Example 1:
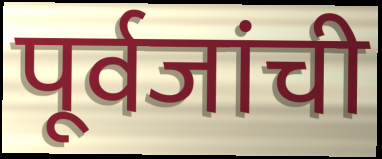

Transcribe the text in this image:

पूर्वजांची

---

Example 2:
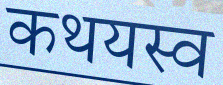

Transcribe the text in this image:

कथयस्व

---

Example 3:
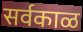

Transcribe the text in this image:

सर्वकाळ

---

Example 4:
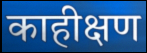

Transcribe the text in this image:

काहीक्षण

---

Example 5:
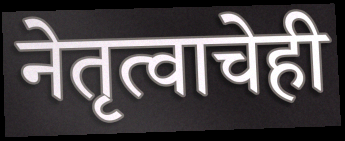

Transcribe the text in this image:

नेतृत्वाचेही